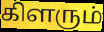
கிளரும்